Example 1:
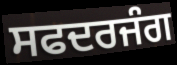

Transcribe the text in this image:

ਸਫਦਰਜੰਗ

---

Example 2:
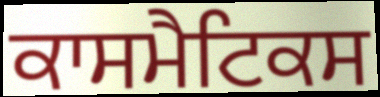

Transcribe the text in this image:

ਕਾਸਮੈਟਿਕਸ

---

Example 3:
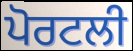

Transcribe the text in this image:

ਪੋਰਟਲੀ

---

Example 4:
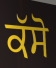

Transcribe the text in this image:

ਕੱਸੋ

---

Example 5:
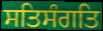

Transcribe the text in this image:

ਸਤਿਸੰਗਤਿ